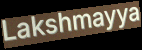
Lakshmayya